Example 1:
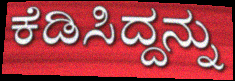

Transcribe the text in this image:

ಕೆಡಿಸಿದ್ದನ್ನು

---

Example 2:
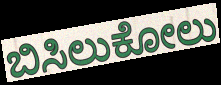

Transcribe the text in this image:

ಬಿಸಿಲುಕೋಲು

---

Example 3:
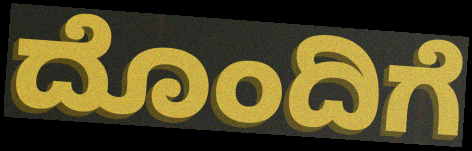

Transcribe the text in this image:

ದೊಂದಿಗೆ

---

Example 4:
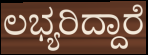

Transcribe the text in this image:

ಲಭ್ಯರಿದ್ದಾರೆ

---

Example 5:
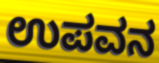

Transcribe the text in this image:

ಉಪವನ